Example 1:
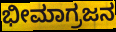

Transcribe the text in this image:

ಭೀಮಾಗ್ರಜನ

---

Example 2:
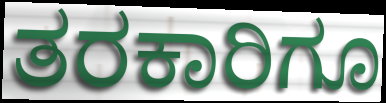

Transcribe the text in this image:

ತರಕಾರಿಗೂ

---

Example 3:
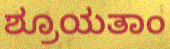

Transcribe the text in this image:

ಶ್ರೂಯತಾಂ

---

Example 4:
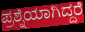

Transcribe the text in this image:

ಪ್ರಶ್ನೆಯಾಗಿದ್ದರೆ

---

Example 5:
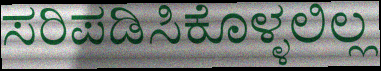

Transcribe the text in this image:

ಸರಿಪಡಿಸಿಕೊಳ್ಳಲಿಲ್ಲ